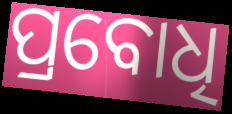
ପ୍ରବୋଧି